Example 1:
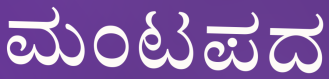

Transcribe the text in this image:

ಮಂಟಪದ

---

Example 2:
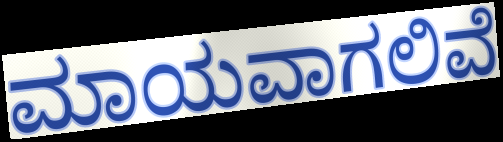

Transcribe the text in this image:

ಮಾಯವಾಗಲಿವೆ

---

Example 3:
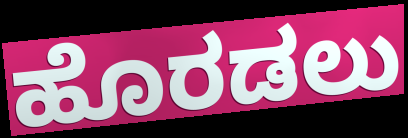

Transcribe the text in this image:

ಹೊರಡಲು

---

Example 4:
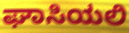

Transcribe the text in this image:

ಘಾಸಿಯಲಿ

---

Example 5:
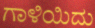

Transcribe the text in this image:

ಗಾಳಿಯಿದು